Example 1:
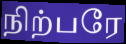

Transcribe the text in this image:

நிற்பரே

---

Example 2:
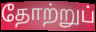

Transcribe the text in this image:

தோற்றுப்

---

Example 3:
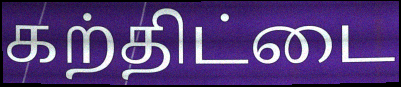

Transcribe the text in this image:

கற்திட்டை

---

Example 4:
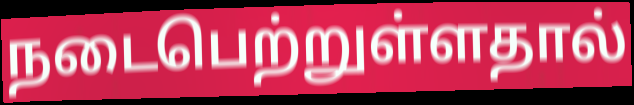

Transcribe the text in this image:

நடைபெற்றுள்ளதால்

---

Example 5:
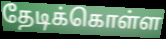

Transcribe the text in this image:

தேடிக்கொள்ள